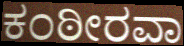
ಕಂಠೀರವಾ